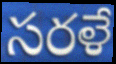
సరళే